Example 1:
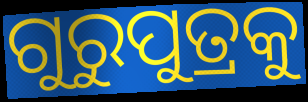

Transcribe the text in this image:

ଗୁରୁପୁତ୍ରକୁ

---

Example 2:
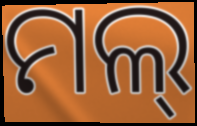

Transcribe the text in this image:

ମଲ୍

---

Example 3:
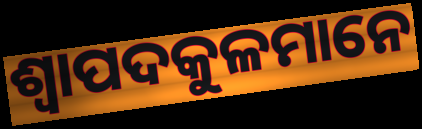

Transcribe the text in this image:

ଶ୍ୱାପଦକୁଳମାନେ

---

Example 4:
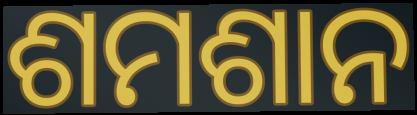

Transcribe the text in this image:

ଶମଶାନ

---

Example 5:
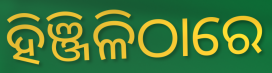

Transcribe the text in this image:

ହିଞ୍ଜିଳିଠାରେ